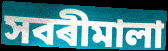
সবৰীমালা